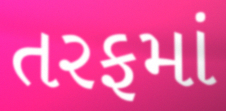
તરફમાં